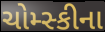
ચોમ્સ્કીના